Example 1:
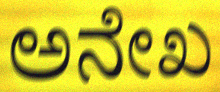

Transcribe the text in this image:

ಅನೇಖ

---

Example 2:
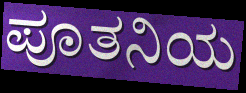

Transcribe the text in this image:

ಪೂತನಿಯ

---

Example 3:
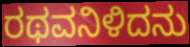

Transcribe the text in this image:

ರಥವನಿಳಿದನು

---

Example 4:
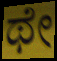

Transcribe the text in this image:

ಥೇ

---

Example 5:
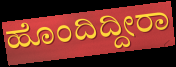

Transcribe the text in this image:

ಹೊಂದಿದ್ದೀರಾ